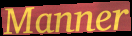
Manner